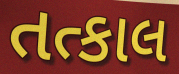
તત્કાલ